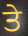
ਤੇ